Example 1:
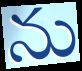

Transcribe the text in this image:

ను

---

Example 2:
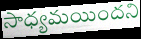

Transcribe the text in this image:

సాధ్యమయిందని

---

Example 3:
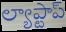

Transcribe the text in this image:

ల్యాప్టాప్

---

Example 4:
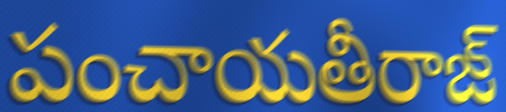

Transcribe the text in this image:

పంచాయతీరాజ్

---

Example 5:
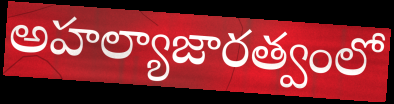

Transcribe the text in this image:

అహల్యాజారత్వంలో